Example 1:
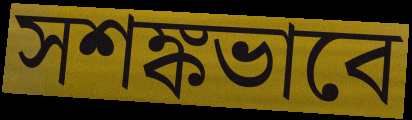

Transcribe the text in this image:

সশঙ্কভাবে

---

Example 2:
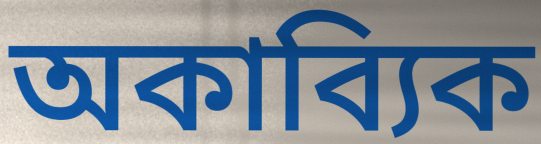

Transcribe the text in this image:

অকাব্যিক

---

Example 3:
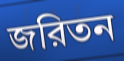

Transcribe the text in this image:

জরিতন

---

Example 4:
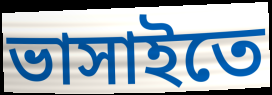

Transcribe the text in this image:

ভাসাইতে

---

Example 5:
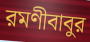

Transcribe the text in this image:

রমণীবাবুর